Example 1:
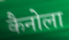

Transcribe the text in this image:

कैनोला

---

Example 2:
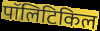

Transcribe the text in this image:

पॉलिटिकिल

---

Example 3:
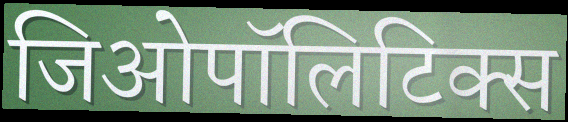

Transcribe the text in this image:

जिओपॉलिटिक्स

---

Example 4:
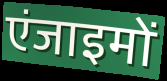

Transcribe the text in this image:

एंजाइमों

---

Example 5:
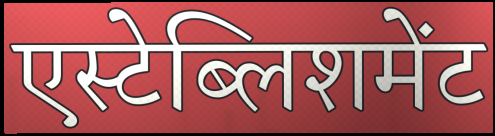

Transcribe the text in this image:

एस्टेब्लिशमेंट